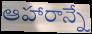
ఆహారాన్నే